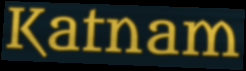
Katnam